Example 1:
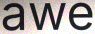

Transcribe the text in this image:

awe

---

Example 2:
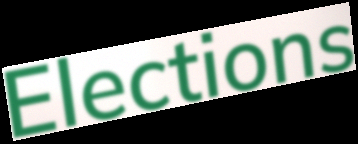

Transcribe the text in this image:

Elections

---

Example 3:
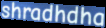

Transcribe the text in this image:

shradhdha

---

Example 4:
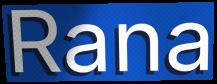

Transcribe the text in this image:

Rana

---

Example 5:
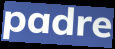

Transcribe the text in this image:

padre